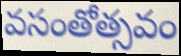
వసంతోత్సవం